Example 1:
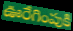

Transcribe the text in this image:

ఊరేగింపుకి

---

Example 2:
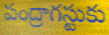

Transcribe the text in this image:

పంద్రాగస్టుకు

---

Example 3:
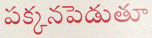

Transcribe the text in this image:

పక్కనపెడుతూ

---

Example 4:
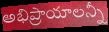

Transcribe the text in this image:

అభిప్రాయాలన్నీ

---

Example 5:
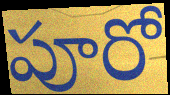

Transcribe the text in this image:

పూరో